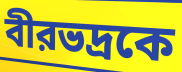
বীরভদ্রকে